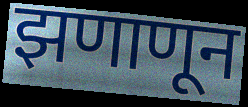
झणाणून